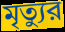
মৃত্যুর